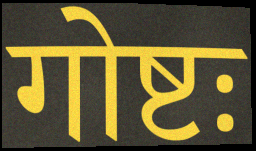
गोष्टः